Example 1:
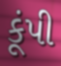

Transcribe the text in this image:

કૂંપી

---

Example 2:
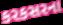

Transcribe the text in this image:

કરકસરના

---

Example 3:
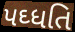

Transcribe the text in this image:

પઘ્ધતિ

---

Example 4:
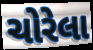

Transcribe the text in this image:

ચોરેલા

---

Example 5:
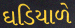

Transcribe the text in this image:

ઘડિયાળે